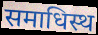
समाधिस्थ